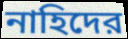
নাহিদের